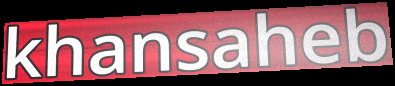
khansaheb